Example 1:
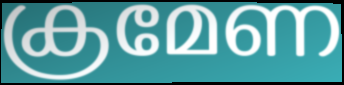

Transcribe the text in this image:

ക്രമേണ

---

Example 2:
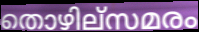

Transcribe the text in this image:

തൊഴില്സമരം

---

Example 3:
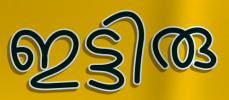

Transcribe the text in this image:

ഇട്ടിരു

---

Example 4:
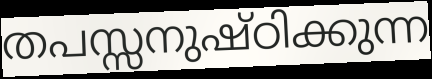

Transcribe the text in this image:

തപസ്സനുഷ്ഠിക്കുന്ന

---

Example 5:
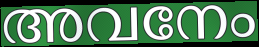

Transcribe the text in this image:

അവനേം